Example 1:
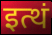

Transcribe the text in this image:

इत्थं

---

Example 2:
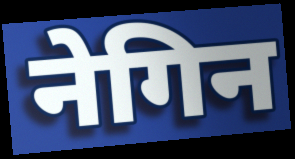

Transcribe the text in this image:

नेगिन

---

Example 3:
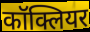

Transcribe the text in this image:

कॉक्लियर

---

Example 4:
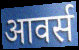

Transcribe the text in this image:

आवर्स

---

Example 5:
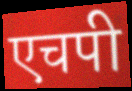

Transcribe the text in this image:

एचपी